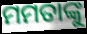
ମମତାଙ୍କୁ